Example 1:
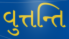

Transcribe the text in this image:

વુત્તન્તિ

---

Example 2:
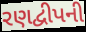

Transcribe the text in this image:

રણદ્વીપની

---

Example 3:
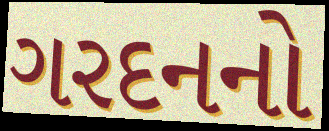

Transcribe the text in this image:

ગરદનનો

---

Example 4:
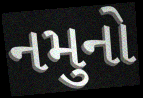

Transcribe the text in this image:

નમુનો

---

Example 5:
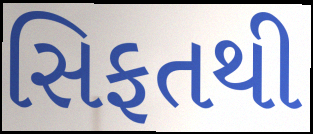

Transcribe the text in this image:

સિફતથી